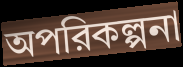
অপরিকল্পনা